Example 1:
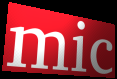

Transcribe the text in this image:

mic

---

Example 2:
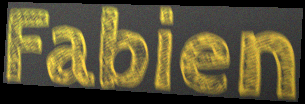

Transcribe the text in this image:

Fabien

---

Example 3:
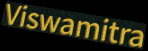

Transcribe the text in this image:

Viswamitra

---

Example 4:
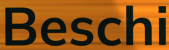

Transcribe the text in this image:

Beschi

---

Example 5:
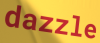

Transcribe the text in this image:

dazzle